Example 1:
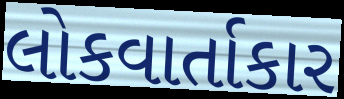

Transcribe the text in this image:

લોકવાર્તાકાર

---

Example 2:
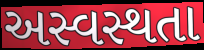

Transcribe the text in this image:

અસ્વસ્થતા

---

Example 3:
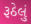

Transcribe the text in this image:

રૂઠેલું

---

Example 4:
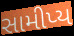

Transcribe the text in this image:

સામીપ્ય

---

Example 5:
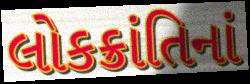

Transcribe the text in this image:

લોકક્રાંતિનાં